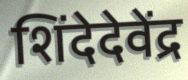
शिंदेदेवेंद्र